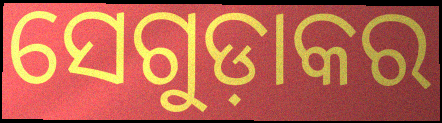
ସେଗୁଡ଼ାକର